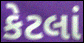
કેટલાં